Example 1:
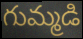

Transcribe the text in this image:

గుమ్మడి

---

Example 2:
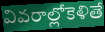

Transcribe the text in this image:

వివరాల్లోకెళితే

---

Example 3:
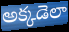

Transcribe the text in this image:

అక్కడెలా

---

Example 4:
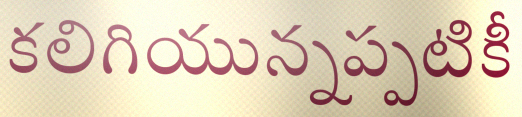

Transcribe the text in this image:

కలిగియున్నప్పటికీ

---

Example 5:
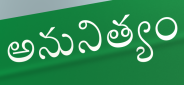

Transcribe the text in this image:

అనునిత్యం